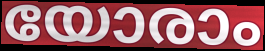
യോരാം